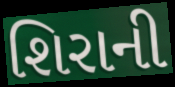
શિરાની